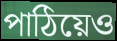
পাঠিয়েও